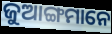
ଜୁଆଙ୍ଗମାନେ